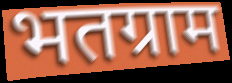
भतग्राम